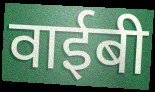
वाईबी